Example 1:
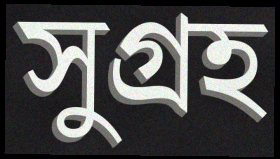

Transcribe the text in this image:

সুগ্রহ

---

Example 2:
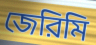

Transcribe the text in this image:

জেরিমি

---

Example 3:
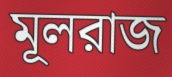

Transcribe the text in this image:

মূলরাজ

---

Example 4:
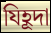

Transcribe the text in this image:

যিহূদা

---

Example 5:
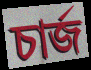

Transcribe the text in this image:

চার্জ